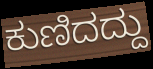
ಕುಣಿದದ್ದು